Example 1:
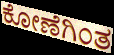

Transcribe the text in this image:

ಕೋಣೆಗಿಂತ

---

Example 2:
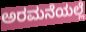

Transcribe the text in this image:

ಅರಮನೆಯಲ್ಲೆ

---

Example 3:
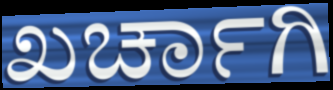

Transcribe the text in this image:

ಖರ್ಚಾಗಿ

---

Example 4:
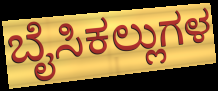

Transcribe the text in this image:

ಬೈಸಿಕಲ್ಲುಗಳ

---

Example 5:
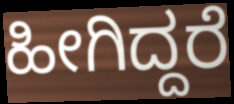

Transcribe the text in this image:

ಹೀಗಿದ್ದರೆ